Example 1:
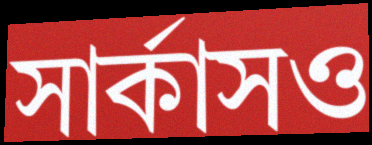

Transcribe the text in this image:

সার্কাসও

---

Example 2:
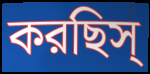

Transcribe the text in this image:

করছিস্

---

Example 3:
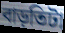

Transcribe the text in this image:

বাড়তিটা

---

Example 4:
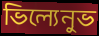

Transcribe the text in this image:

ভিল্যেনুভ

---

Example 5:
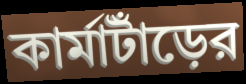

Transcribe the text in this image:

কার্মাটাঁড়ের